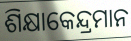
ଶିକ୍ଷାକେନ୍ଦ୍ରମାନ